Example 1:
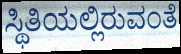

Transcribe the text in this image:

ಸ್ಥಿತಿಯಲ್ಲಿರುವಂತೆ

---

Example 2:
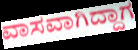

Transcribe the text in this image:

ವಾಸವಾಗಿದ್ದಾಗ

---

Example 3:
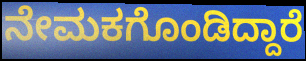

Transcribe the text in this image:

ನೇಮಕಗೊಂಡಿದ್ದಾರೆ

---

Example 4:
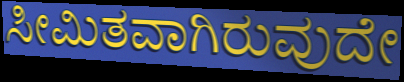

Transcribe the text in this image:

ಸೀಮಿತವಾಗಿರುವುದೇ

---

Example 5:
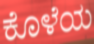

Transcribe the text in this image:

ಕೊಳೆಯ